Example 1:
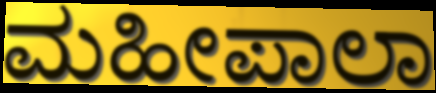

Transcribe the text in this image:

ಮಹೀಪಾಲಾ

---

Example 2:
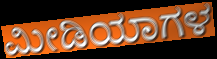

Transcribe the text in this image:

ಮೀಡಿಯಾಗಳ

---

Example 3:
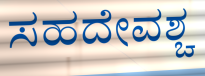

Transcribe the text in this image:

ಸಹದೇವಶ್ಚ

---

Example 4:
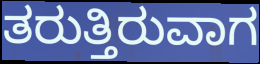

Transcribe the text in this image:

ತರುತ್ತಿರುವಾಗ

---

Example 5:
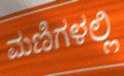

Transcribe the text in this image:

ಮಣಿಗಳಲ್ಲಿ